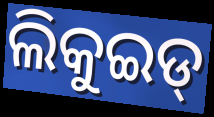
ଲିକୁଇଡ୍